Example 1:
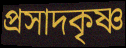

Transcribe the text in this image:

প্রসাদকৃষ্ণ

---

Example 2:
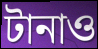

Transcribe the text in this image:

টানাও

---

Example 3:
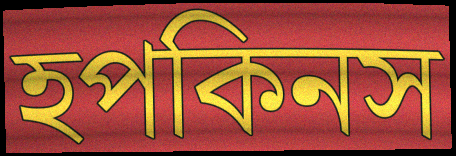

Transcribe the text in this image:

হপকিনস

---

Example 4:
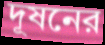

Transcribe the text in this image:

দূষনের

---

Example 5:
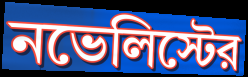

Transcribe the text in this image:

নভেলিস্টের